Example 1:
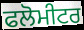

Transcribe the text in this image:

ਫਲੋਮੀਟਰ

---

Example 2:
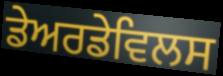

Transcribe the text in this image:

ਡੇਅਰਡੇਵਿਲਸ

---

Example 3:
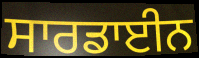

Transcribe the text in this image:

ਸਾਰਡਾਈਨ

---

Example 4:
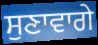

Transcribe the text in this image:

ਸੁਣਾਵਾਗੇ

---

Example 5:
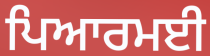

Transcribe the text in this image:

ਪਿਆਰਮਈ